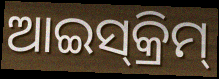
ଆଇସ୍‍କ୍ରିମ୍